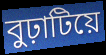
বুঢ়াটিয়ে